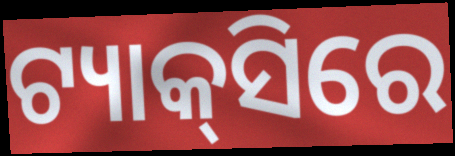
ଟ୍ୟାକ୍‍ସିରେ